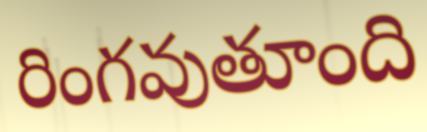
రింగవుతూంది